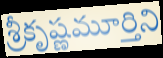
శ్రీకృష్ణమూర్తిని